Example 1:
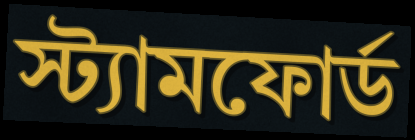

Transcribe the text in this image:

স্ট্যামফোর্ড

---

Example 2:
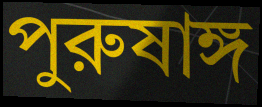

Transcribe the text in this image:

পুরুষাঙ্গ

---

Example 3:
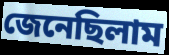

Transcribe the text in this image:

জেনেছিলাম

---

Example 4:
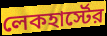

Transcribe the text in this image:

লেকহার্স্টের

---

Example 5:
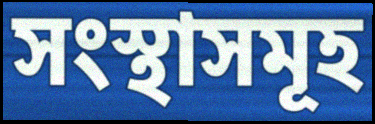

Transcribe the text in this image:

সংস্থাসমূহ